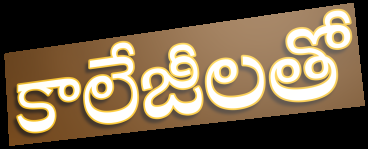
కాలేజీలతో